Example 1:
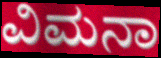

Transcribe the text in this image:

ವಿಮನಾ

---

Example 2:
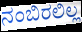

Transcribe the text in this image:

ನಂಬಿರಲಿಲ್ಲ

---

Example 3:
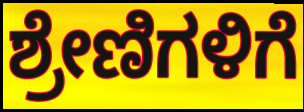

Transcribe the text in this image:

ಶ್ರೇಣಿಗಳಿಗೆ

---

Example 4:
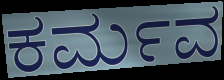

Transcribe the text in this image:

ಕರ್ಮವ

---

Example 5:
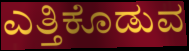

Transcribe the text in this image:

ಎತ್ತಿಕೊಡುವ